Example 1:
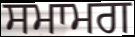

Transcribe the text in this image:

ਸਮਾਮਗ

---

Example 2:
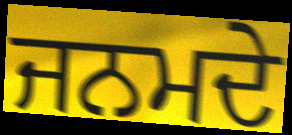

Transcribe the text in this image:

ਜਨਮਦੇ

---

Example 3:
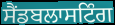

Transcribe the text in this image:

ਸੈਂਡਬਲਾਸਟਿੰਗ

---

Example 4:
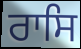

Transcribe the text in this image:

ਰਾਸਿ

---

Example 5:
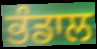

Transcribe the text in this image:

ਭੰਡਾਲ